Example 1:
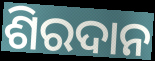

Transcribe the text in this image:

ଶିରଦାନ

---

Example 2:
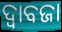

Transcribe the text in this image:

ଦ୍ୱାବଜା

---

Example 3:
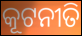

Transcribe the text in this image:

କୂଟନୀତି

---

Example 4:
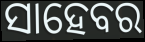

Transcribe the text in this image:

ସାହେବର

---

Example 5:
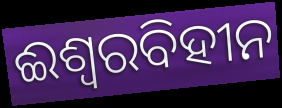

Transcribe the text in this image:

ଈଶ୍ୱରବିହୀନ